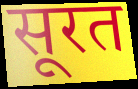
सूरत